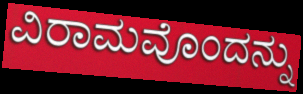
ವಿರಾಮವೊಂದನ್ನು